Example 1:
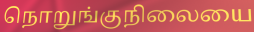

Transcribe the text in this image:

நொறுங்குநிலையை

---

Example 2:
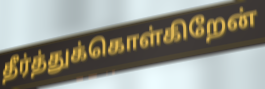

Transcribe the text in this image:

தீர்த்துக்கொள்கிறேன்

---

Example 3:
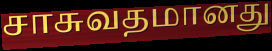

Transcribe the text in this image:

சாசுவதமானது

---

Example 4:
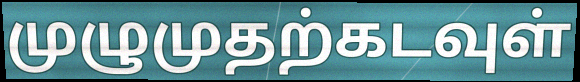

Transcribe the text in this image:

முழுமுதற்கடவுள்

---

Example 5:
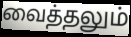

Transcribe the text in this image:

வைத்தலும்